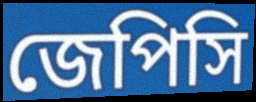
জেপিসি